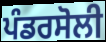
ਪੰਡਰਸੋਲੀ